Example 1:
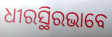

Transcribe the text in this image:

ଧୀରସ୍ଥିରଭାବେ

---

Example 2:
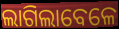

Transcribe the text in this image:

ଲାଗିଲାବେଳେ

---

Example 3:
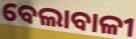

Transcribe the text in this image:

ବେଲାବାଳୀ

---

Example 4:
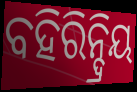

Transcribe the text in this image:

ବହିରିନ୍ଦ୍ରିୟ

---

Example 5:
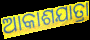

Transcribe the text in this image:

ଆକାଶଯାତ୍ରା